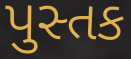
પુસ્તક